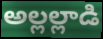
అల్లల్లాడి